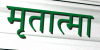
मृतात्मा